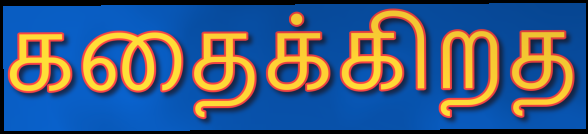
கதைக்கிறத